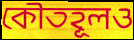
কৌতহূলও